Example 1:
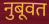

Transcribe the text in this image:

नुबूवत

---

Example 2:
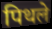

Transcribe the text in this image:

पिथले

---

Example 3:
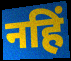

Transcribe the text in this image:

नहिं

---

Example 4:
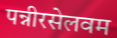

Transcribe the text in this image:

पन्नीरसेलवम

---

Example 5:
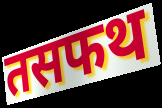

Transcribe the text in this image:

तसफथ